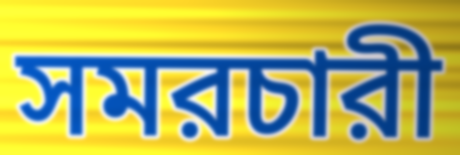
সমরচারী